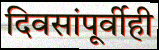
दिवसांपूर्वीही